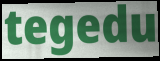
tegedu